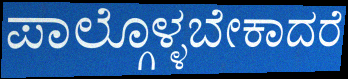
ಪಾಲ್ಗೊಳ್ಳಬೇಕಾದರೆ